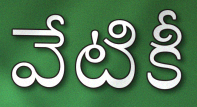
వేటికీ